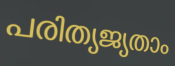
പരിത്യജ്യതാം